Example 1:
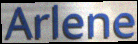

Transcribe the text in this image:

Arlene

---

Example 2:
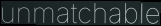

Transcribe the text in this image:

unmatchable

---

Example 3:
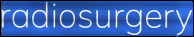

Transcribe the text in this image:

radiosurgery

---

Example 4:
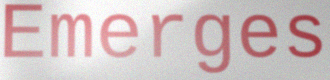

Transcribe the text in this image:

Emerges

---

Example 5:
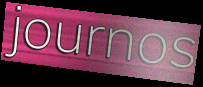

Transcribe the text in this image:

journos